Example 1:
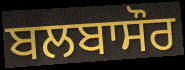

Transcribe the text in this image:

ਬਲਬਾਸੌਰ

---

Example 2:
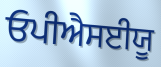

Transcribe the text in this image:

ਓਪੀਐਸਈਯੂ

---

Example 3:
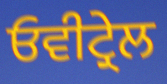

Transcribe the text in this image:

ਓਵੀਟ੍ਰੇਲ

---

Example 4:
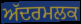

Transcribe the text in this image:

ਅੱਦਰਮਲਕ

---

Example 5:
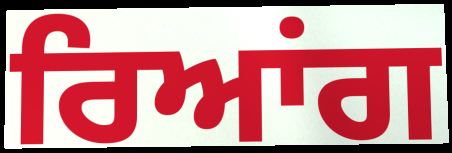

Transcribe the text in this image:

ਰਿਆਂਗ